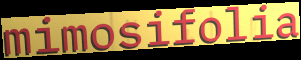
mimosifolia